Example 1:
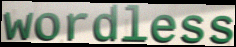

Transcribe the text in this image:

wordless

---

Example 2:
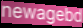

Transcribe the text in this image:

newagebd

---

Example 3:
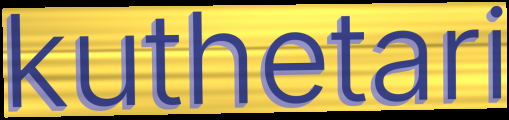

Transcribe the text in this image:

kuthetari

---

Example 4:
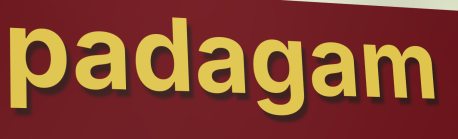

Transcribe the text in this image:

padagam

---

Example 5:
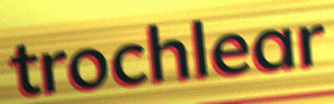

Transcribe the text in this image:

trochlear